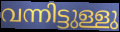
വന്നിട്ടുള്ളു